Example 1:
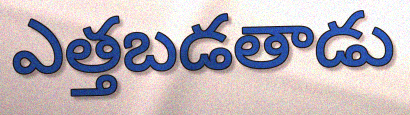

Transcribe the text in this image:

ఎత్తబడతాడు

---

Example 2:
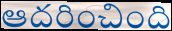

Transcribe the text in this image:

ఆదరించింది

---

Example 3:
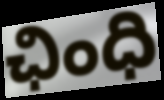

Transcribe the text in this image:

ఛింధి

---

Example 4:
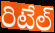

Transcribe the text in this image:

రిటేల్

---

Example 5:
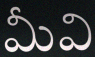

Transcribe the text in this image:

మీవి